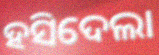
ହସିଦେଲା